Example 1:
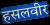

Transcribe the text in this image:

हसलवीर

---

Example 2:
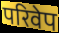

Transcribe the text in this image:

परिवेप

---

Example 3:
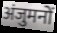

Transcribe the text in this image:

अंजुमनों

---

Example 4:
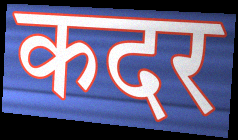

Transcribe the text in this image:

कदर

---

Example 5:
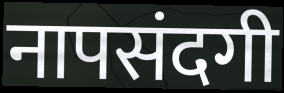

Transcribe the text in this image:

नापसंदगी